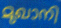
മുഖാനി